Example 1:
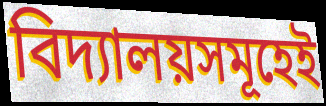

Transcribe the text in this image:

বিদ্যালয়সমূহেই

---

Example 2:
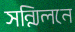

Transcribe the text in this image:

সন্মিলনে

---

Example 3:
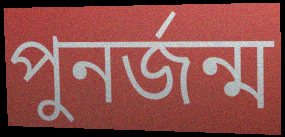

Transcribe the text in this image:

পুনৰ্জন্ম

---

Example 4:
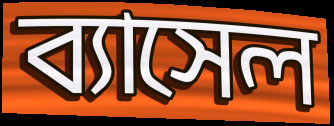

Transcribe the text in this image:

ব্যাসেল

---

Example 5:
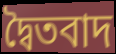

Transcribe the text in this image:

দ্বৈতবাদ